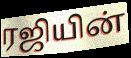
ரஜியின்